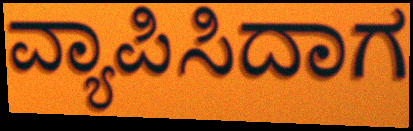
ವ್ಯಾಪಿಸಿದಾಗ